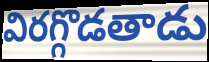
విరగ్గొడతాడు